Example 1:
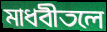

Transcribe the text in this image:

মাধবীতলে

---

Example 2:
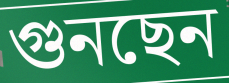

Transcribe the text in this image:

গুনছেন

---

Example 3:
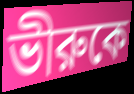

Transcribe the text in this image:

ভীরুকে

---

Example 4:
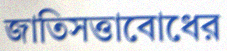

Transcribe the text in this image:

জাতিসত্তাবোধের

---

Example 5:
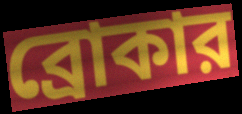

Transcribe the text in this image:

ব্রোকার